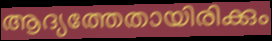
ആദ്യത്തേതായിരിക്കും